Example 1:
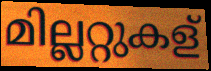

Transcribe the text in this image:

മില്ലറ്റുകള്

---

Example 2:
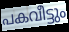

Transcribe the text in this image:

പകവീട്ടും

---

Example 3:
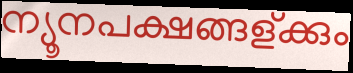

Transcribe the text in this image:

ന്യൂനപക്ഷങ്ങള്ക്കും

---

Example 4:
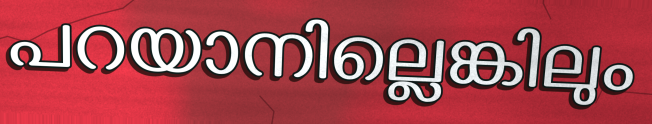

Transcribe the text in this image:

പറയാനില്ലെങ്കിലും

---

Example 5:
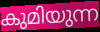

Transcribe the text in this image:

കുമിയുന്ന